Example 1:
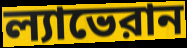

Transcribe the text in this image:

ল্যাভেরান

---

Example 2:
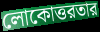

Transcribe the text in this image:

লোকোত্তরতার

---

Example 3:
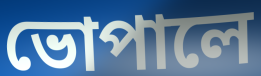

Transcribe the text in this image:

ভোপালে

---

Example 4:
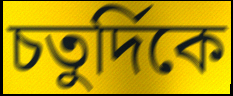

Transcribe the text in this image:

চতুর্দিকে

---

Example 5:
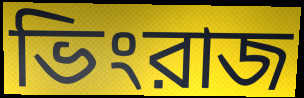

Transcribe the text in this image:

ভিংরাজ